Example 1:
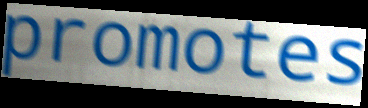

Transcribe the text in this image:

promotes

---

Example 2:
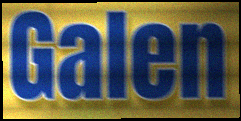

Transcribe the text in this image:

Galen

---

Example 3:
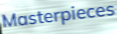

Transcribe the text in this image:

Masterpieces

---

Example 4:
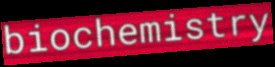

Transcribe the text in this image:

biochemistry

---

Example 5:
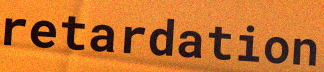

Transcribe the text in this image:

retardation